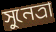
সুনেত্রা